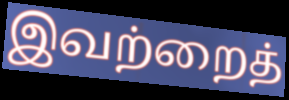
இவற்றைத்